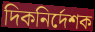
দিকনির্দেশক